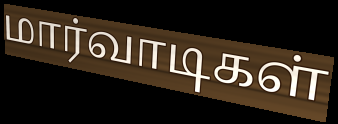
மார்வாடிகள்